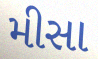
મીસા